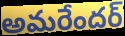
అమరేందర్